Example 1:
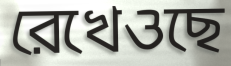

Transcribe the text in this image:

রেখেওছে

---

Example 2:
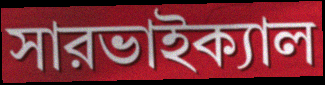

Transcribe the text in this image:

সারভাইক্যাল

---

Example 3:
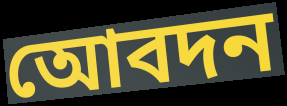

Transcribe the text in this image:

আেবদন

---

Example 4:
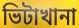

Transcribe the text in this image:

ভিটাখানা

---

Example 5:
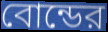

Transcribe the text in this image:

বোন্ডের